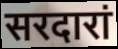
सरदारां